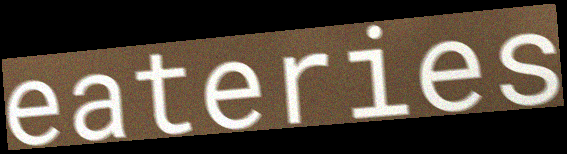
eateries